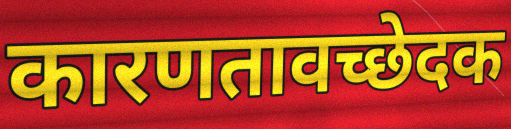
कारणतावच्छेदक